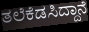
ತಲೆಕೆಡಸಿದ್ದಾನೆ